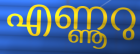
എണ്ണൂറു